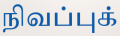
நிவப்புக்